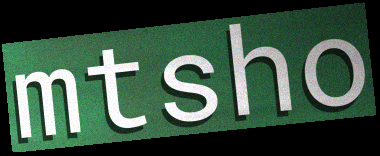
mtsho